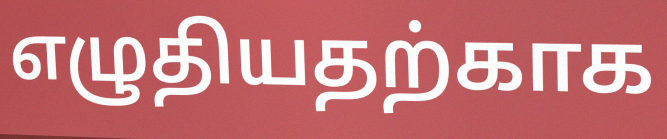
எழுதியதற்காக